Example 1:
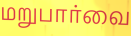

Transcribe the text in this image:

மறுபார்வை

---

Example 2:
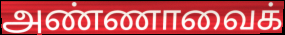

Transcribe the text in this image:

அண்ணாவைக்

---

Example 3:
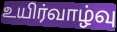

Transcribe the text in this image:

உயிர்வாழ்வு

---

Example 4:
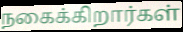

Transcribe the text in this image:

நகைக்கிறார்கள்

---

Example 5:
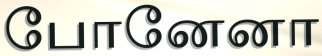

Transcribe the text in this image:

போனேனா